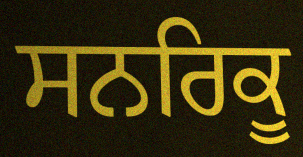
ਸਨਰਿਕੂ